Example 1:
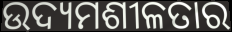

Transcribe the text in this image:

ଉଦ୍ୟମଶୀଳତାର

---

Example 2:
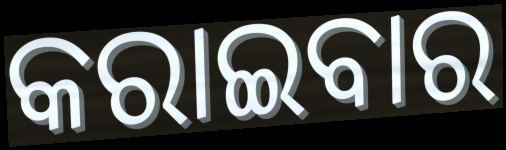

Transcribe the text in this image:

କରାଇବାର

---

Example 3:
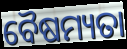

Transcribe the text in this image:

ବୈଷମ୍ୟତା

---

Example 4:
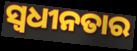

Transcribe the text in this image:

ସ୍ବଧୀନତାର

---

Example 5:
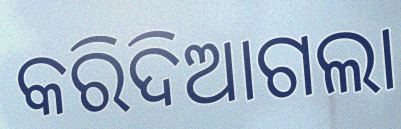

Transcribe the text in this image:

କରିଦିଆଗଲା